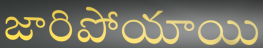
జారిపోయాయి